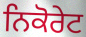
ਨਿਕੋਰੇਟ